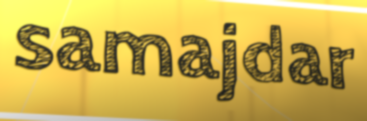
samajdar